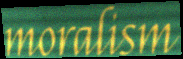
moralism